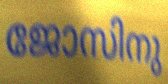
ജോസിനു